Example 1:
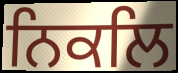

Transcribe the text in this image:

ਨਿਕਲਿ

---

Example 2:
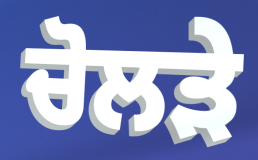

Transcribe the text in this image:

ਚੋਲੜੇ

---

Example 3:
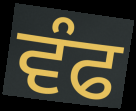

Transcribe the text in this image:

ਵੰਫ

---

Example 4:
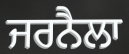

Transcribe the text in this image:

ਜਰਨੈਲਾ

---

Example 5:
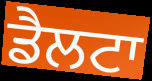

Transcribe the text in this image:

ਡੈਲਟਾ